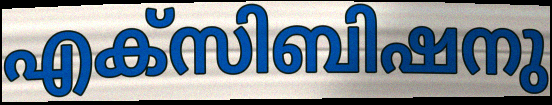
എക്സിബിഷനു